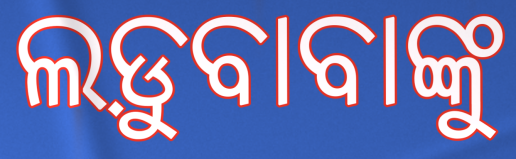
ଲଡ଼ୁବାବାଙ୍କୁ